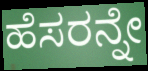
ಹೆಸರನ್ನೇ